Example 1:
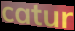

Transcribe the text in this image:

catur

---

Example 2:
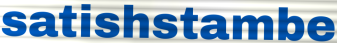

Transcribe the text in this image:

satishstambe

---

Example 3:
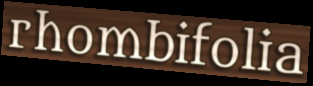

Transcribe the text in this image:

rhombifolia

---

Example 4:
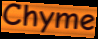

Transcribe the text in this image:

Chyme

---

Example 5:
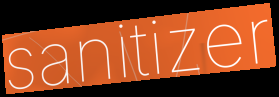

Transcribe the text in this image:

sanitizer